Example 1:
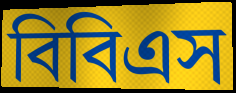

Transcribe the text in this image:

বিবিএস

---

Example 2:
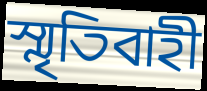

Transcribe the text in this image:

স্মৃতিবাহী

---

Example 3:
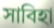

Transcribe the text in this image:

সাবিহা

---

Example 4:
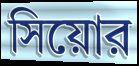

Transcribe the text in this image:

সিয়োর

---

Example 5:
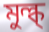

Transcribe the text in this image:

মুল্ক্